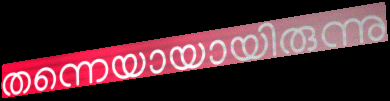
തന്നെയായായിരുന്നു